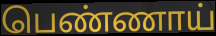
பெண்ணாய்